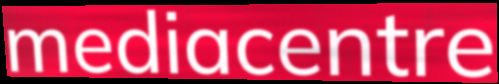
mediacentre